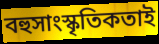
বহুসাংস্কৃতিকতাই